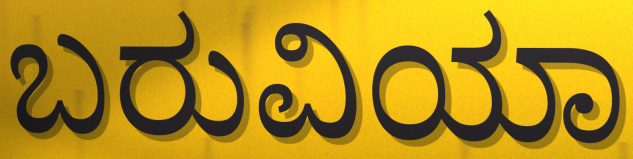
ಬರುವಿಯಾ